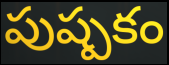
పుష్పకం